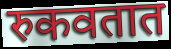
रुकवतात